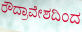
ರೌದ್ರಾವೇಶದಿಂದ